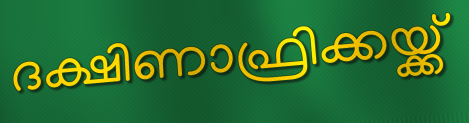
ദക്ഷിണാഫ്രിക്കയ്ക്ക്